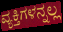
ವ್ಯಕ್ತಿಗಳನ್ನಲ್ಲ